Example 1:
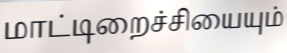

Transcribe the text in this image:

மாட்டிறைச்சியையும்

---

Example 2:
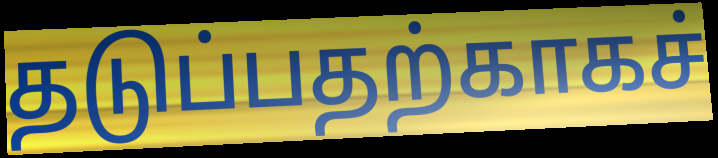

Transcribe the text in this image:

தடுப்பதற்காகச்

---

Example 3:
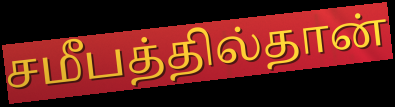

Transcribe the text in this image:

சமீபத்தில்தான்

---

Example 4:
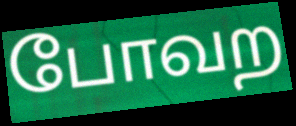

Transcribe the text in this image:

போவற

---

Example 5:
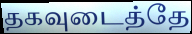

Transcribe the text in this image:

தகவுடைத்தே